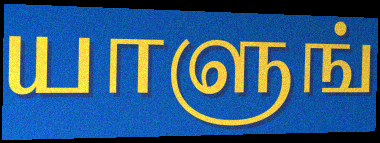
யாளுங்